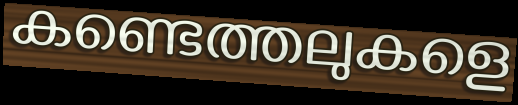
കണ്ടെത്തലുകളെ